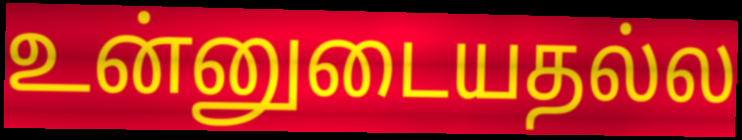
உன்னுடையதல்ல